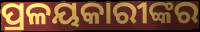
ପ୍ରଳୟକାରୀଙ୍କର